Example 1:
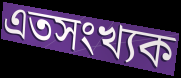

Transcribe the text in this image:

এতসংখ্যক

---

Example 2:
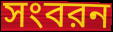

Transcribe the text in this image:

সংবরন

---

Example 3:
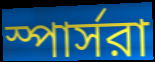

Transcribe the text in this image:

স্পার্সরা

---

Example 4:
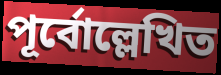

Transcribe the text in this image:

পূর্বোল্লেখিত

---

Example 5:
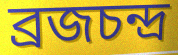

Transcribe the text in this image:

ব্রজচন্দ্র